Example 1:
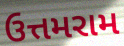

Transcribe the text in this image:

ઉત્તમરામ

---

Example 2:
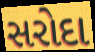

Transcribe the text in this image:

સરોદા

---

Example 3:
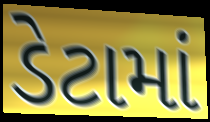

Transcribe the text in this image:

ડેટામાં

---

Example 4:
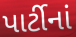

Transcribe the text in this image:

પાર્ટીનાં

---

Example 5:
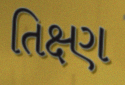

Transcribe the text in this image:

તિક્ષ્ણ